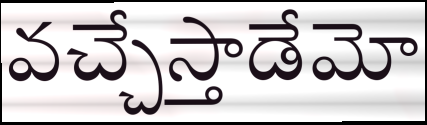
వచ్చేస్తాడేమో